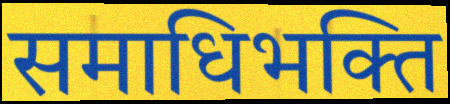
समाधिभक्ति